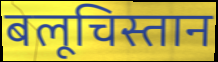
बलूचिस्‍तान